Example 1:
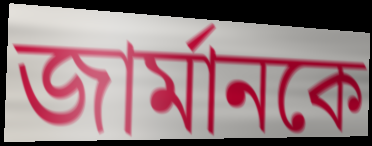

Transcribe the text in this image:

জার্মানকে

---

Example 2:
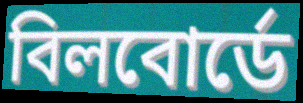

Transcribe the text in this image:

বিলবোর্ডে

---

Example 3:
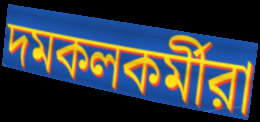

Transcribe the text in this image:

দমকলকর্মীরা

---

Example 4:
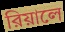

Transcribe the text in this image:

রিয়ালে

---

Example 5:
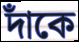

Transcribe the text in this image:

দাঁকে